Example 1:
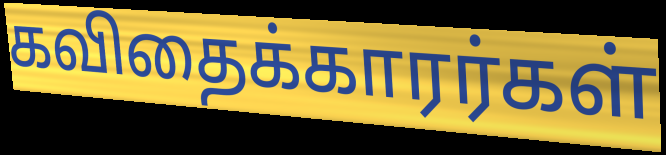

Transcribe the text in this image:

கவிதைக்காரர்கள்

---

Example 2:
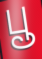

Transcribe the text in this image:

பூ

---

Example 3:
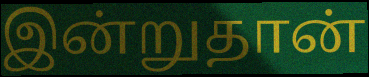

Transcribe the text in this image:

இன்றுதான்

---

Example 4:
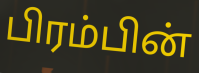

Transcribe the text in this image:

பிரம்பின்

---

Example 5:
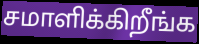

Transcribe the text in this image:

சமாளிக்கிறீங்க